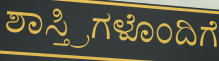
ಶಾಸ್ತ್ರಿಗಳೊಂದಿಗೆ